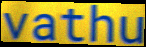
vathu